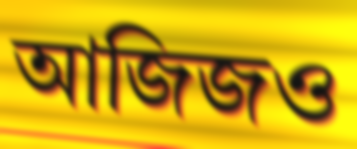
আজিজও